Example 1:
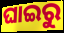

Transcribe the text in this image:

ଘାଇରୁ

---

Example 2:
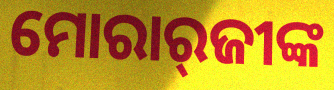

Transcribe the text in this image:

ମୋରାର୍‌ଜୀଙ୍କ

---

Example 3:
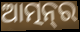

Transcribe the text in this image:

ଆତ୍ମନ୍‌ର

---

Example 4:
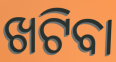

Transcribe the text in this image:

ଖଟିବା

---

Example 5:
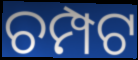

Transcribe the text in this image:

ଚମ୍ପଟ